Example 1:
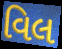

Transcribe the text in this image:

વિલ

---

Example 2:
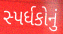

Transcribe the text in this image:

સ્પર્ધકોનું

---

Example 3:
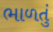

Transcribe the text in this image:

ભાળતું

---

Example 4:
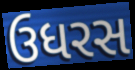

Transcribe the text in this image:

ઉધરસ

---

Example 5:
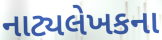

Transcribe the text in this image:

નાટ્યલેખકના